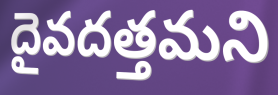
దైవదత్తమని